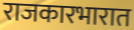
राजकारभारात